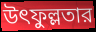
উৎফুল্লতার